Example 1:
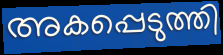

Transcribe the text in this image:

അകപ്പെടുത്തി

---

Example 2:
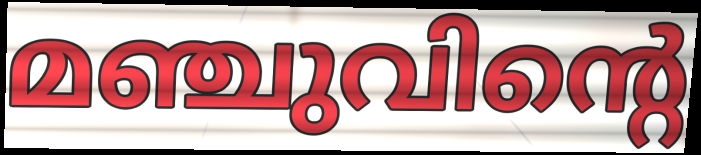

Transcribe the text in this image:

മഞ്ചുവിന്റെ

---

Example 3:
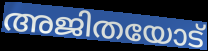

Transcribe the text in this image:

അജിതയോട്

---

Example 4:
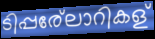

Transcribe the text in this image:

ടിപ്പര്ലോറികള്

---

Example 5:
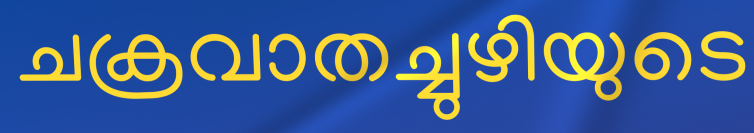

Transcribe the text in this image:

ചക്രവാതച്ചുഴിയുടെ